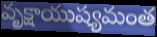
వృక్షాయుష్యమంత